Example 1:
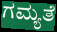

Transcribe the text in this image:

ಗಮ್ಯತೆ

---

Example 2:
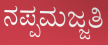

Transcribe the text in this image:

ನಪ್ಪಮಜ್ಜತಿ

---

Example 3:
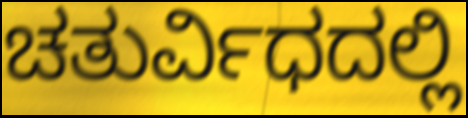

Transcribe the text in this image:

ಚತುರ್ವಿಧದಲ್ಲಿ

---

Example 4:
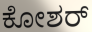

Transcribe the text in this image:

ಕೋಶರ್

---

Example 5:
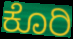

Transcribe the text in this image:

ಕೊರಿ